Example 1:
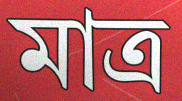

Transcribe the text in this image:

মাত্র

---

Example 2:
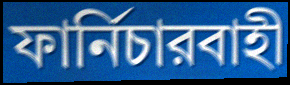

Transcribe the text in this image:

ফার্নিচারবাহী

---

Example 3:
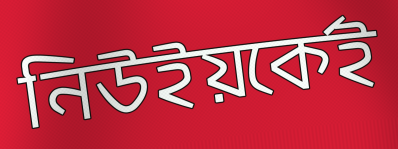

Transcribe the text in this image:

নিউইয়র্কেই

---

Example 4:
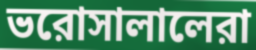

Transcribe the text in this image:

ভরোসালালেরা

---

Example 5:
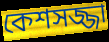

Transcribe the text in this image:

কেশসজ্জা